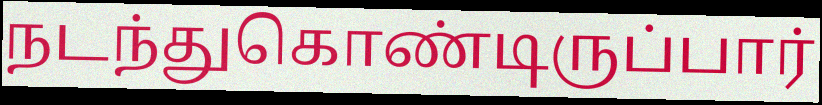
நடந்துகொண்டிருப்பார்